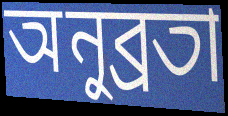
অনুব্রতা